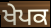
ਖੇਪਕ